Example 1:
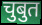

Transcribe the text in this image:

चुबुत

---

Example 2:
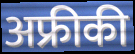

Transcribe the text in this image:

अफ्रीकी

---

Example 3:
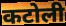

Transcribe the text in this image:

कटोली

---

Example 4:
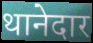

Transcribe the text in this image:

थानेदार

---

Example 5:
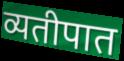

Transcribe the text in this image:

व्यतीपात